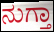
ನುಗ್ತಾ